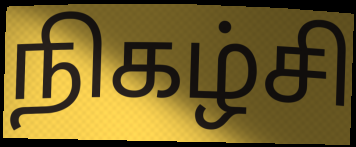
நிகழ்சி